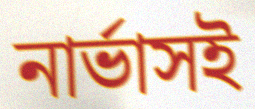
নার্ভাসই